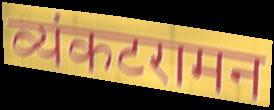
व्यंकटरामन